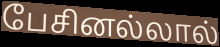
பேசினல்லால்